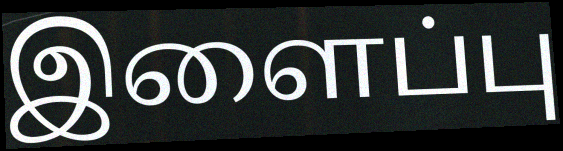
இளைப்பு